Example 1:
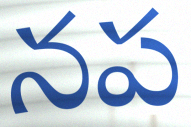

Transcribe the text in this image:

నప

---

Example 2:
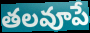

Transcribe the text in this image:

తలవూపే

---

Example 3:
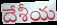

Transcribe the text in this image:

దేశీయ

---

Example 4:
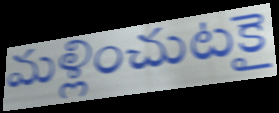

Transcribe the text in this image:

మళ్లించుటకై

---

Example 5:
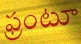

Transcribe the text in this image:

ఫ్రంటూ